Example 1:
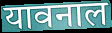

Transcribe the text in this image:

यावनाल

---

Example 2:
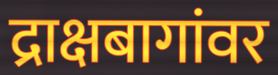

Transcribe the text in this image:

द्राक्षबागांवर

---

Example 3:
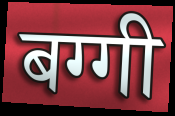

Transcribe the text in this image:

बग्गी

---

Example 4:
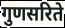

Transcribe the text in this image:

गुणसरिते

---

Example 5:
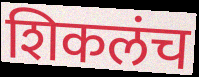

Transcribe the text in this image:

शिकलंच